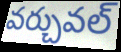
వర్చువల్